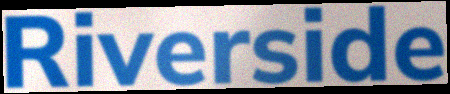
Riverside